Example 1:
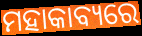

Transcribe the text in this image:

ମହାକାବ୍ୟରେ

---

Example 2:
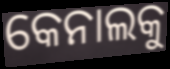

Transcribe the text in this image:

କେନାଲକୁ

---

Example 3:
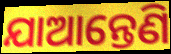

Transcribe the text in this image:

ଯାଆନ୍ତେଣି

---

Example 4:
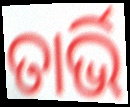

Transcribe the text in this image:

ତାର୍ଭି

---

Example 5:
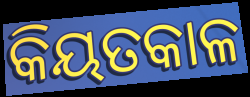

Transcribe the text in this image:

କିୟତକାଳ